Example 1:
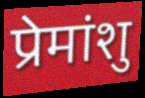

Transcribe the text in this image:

प्रेमांशु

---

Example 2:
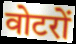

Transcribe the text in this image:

वोटरों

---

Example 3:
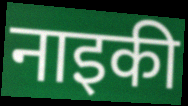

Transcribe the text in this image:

नाइकी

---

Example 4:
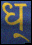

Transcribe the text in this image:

ध्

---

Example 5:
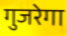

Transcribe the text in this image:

गुजरेगा